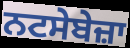
ਨਟਸੇਬੇਜ਼ਾ